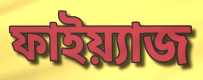
ফাইয়্যাজ